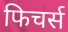
फिचर्स